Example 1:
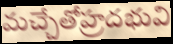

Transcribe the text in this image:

మచ్చేతోహ్రదభువి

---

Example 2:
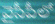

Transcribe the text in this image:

వైసీపీలో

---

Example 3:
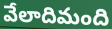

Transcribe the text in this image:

వేలాదిమంది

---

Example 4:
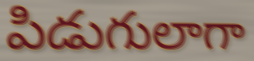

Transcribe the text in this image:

పిడుగులాగా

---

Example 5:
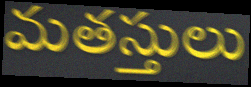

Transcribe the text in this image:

మతస్తులు